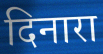
दिनारा